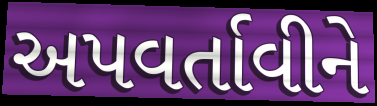
અપવર્તાવીને